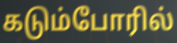
கடும்போரில்